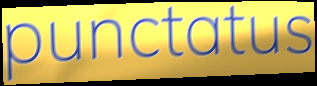
punctatus